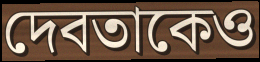
দেবতাকেও